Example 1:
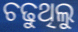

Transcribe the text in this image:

ଚଢୁଥିଲୁ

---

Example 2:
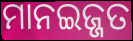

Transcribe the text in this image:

ମାନଇଜ୍ଜତ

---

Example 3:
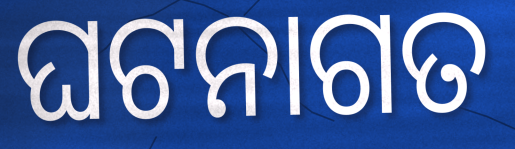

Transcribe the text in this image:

ଘଟନାଗତ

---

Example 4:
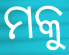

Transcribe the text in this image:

ମକୁ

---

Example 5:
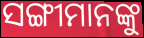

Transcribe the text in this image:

ସଙ୍ଗୀମାନଙ୍କୁ